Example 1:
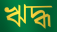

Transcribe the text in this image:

ঋদ্ধ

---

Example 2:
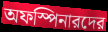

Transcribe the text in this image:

অফস্পিনারদের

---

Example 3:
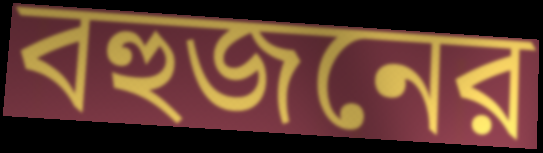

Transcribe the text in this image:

বহুজনের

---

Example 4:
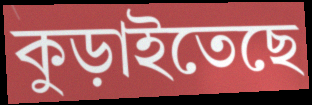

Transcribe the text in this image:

কুড়াইতেছে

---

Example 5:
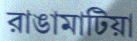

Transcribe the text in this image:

রাঙামাটিয়া